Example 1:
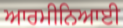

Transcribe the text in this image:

ਆਰਮੀਨਿਆਈ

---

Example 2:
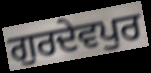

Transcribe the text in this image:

ਗੁਰਦੇਵਪੁਰ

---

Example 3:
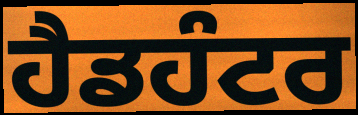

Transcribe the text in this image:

ਹੈਡਹੰਟਰ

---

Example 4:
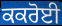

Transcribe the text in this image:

ਕਕਰੋਈ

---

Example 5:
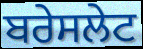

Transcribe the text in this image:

ਬਰੇਸਲੇਟ